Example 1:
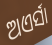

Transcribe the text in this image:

ଅଏର୍ସା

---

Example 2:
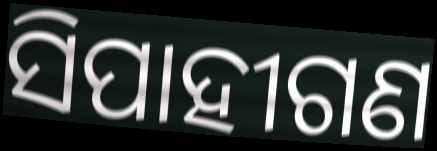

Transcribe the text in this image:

ସିପାହୀଗଣ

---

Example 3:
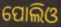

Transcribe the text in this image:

ପୋଲିଓ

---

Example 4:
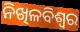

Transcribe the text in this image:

ନିଖିଳବିଶ୍ୱର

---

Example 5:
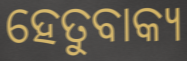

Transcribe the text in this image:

ହେତୁବାକ୍ୟ